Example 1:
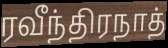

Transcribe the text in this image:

ரவீந்திரநாத்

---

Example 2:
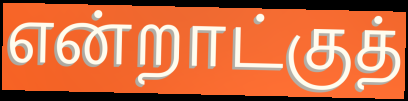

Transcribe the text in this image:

என்றாட்குத்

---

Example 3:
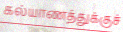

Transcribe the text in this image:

கல்யாணத்துக்குச்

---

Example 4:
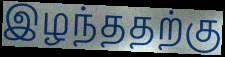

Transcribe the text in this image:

இழந்ததற்கு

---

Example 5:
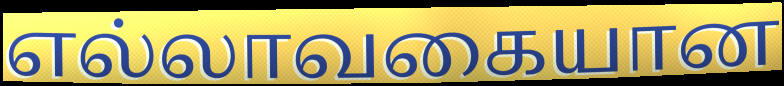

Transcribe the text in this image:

எல்லாவகையான